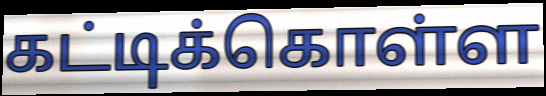
கட்டிக்கொள்ள